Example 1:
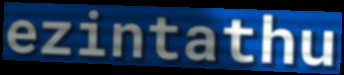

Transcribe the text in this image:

ezintathu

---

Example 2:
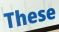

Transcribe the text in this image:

These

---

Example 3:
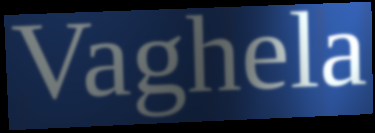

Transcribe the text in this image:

Vaghela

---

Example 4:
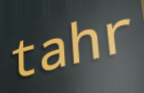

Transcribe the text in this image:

tahr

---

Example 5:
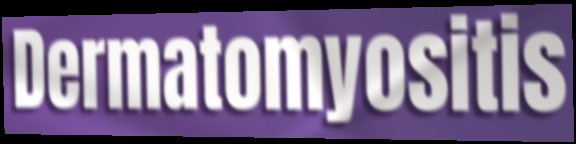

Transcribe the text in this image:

Dermatomyositis